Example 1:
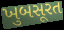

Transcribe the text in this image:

ખુબસૂરત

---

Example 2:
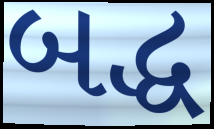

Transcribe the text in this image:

બદ્ધ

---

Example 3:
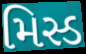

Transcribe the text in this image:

મિસ્ડ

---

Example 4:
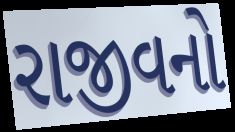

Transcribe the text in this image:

રાજીવનો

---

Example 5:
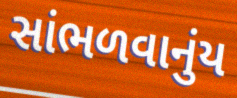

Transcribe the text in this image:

સાંભળવાનુંય